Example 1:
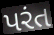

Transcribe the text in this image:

પરંત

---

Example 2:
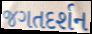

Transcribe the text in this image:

જગતદર્શન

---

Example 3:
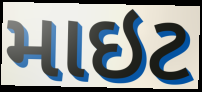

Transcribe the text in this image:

માઇટ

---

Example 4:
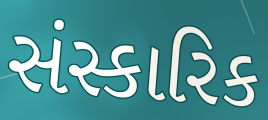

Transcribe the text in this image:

સંસ્કારિક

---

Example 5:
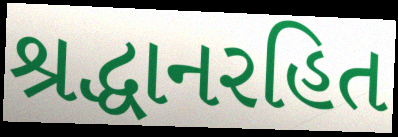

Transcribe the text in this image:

શ્રદ્ધાનરહિત